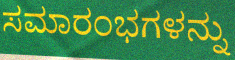
ಸಮಾರಂಭಗಳನ್ನು